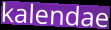
kalendae